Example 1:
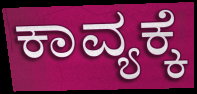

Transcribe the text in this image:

ಕಾವ್ಯಕ್ಕೆ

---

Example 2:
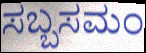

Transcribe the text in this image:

ಸಬ್ಬಸಮಂ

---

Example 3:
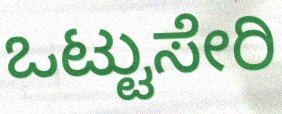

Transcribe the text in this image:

ಒಟ್ಟುಸೇರಿ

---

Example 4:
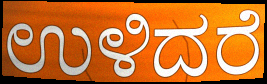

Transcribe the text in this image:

ಉಳಿದರೆ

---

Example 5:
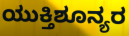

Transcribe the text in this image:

ಯುಕ್ತಿಶೂನ್ಯರ